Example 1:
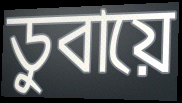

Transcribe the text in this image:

ডুবায়ে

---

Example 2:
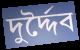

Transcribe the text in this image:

দুর্দ্দৈব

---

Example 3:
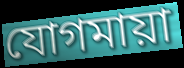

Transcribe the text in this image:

যোগমায়া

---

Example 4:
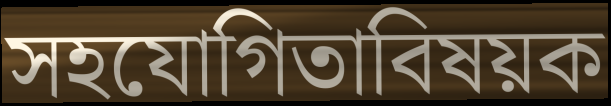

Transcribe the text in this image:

সহযোগিতাবিষয়ক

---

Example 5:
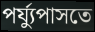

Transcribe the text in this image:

পর্য্যুপাসতে